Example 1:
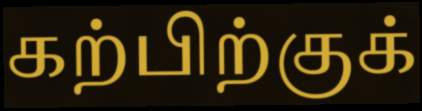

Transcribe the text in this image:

கற்பிற்குக்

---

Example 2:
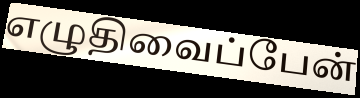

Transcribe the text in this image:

எழுதிவைப்பேன்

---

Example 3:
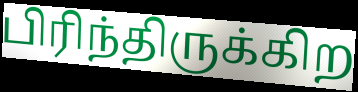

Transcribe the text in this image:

பிரிந்திருக்கிற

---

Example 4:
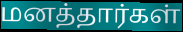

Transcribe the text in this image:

மனத்தார்கள்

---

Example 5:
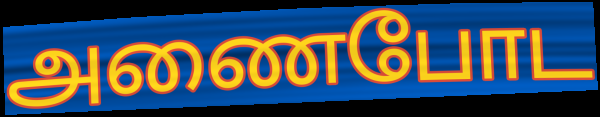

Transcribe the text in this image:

அணைபோட